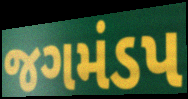
જગમંડપ